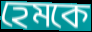
হেমকে